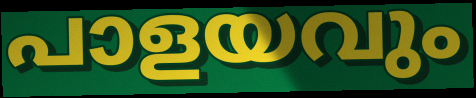
പാളയവും